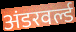
अंडरवर्ल्‍ड